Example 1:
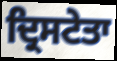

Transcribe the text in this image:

ਦ੍ਰਿਸਟੇਤਾ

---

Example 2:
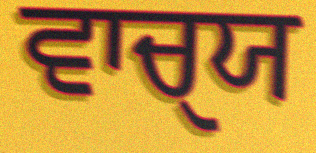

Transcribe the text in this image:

ਵਾਚੑਯ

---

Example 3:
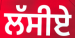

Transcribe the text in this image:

ਲੱਸੀਏ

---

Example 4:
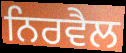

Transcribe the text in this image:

ਨਿਰਵੈਲ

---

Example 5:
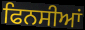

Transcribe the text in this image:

ਫਿਨਸੀਆਂ